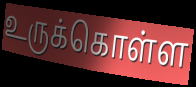
உருக்கொள்ள